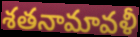
శతనామావళీ